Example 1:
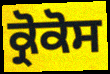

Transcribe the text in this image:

ਕ੍ਰੋਕੋਸ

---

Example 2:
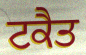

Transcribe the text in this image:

ਟਕੈਤ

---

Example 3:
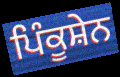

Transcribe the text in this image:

ਪਿੰਕੂਸ਼ੇਨ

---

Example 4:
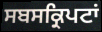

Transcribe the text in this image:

ਸਬਸਕ੍ਰਿਪਟਾਂ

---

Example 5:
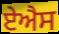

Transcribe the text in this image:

ਏਐਸ